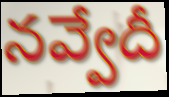
నవ్వేదీ